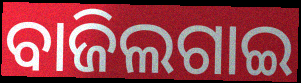
ବାଜିଲଗାଇ